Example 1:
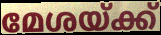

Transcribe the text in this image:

മേശയ്ക്ക്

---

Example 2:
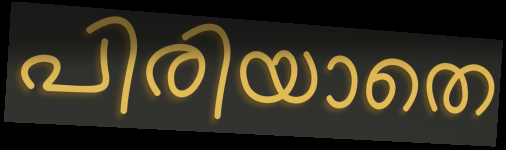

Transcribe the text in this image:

പിരിയാതെ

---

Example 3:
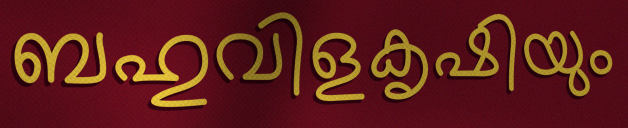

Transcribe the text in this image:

ബഹുവിളകൃഷിയും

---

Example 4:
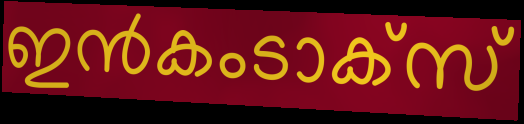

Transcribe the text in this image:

ഇൻകംടാക്സ്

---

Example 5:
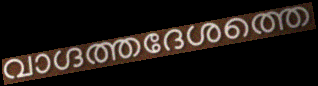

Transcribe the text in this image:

വാഗ്ദത്തദേശത്തെ